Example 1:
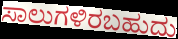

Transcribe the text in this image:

ಸಾಲುಗಳಿರಬಹುದು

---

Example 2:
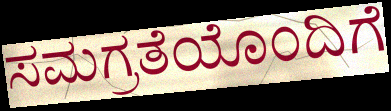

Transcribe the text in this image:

ಸಮಗ್ರತೆಯೊಂದಿಗೆ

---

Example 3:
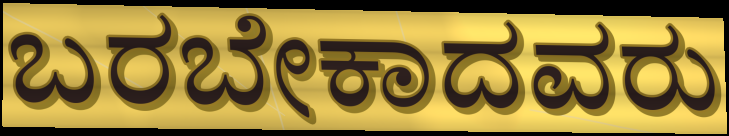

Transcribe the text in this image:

ಬರಬೇಕಾದವರು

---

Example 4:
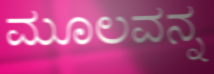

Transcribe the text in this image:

ಮೂಲವನ್ನ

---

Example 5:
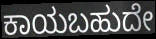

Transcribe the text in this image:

ಕಾಯಬಹುದೇ